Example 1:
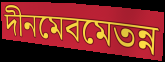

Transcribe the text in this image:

দীনমেবমেতন্ন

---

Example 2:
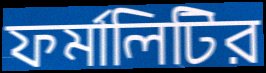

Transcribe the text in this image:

ফর্মালিটির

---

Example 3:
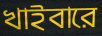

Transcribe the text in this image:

খাইবারে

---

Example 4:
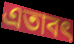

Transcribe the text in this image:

এতাবৎ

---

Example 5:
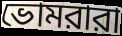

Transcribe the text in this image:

ভোমরারা